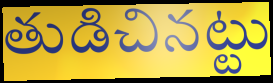
తుడిచినట్టు